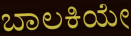
ಬಾಲಕಿಯೇ